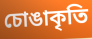
চোঙাকৃতি